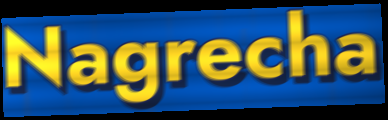
Nagrecha